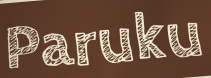
Paruku